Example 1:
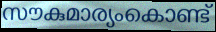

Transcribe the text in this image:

സൗകുമാര്യംകൊണ്ട്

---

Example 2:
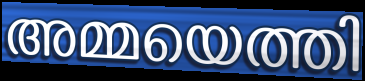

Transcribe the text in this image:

അമ്മയെത്തി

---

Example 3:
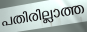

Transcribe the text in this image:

പതിരില്ലാത്ത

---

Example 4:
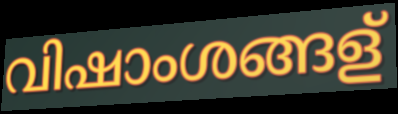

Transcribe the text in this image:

വിഷാംശങ്ങള്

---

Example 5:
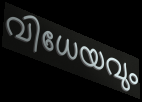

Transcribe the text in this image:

വിധേയവും